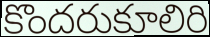
కొందరుకూలిరి